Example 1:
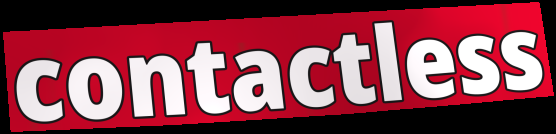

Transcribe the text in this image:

contactless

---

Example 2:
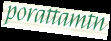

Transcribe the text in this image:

porattamtn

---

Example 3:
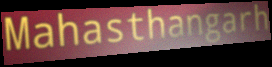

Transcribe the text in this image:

Mahasthangarh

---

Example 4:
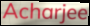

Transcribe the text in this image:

Acharjee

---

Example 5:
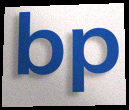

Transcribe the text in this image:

bp